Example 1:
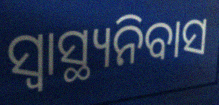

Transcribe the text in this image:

ସ୍ୱାସ୍ଥ୍ୟନିବାସ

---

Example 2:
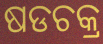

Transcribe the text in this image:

ଷଡଚକ୍ର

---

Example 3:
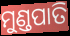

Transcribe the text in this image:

ମୁଣ୍ଡପାତି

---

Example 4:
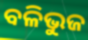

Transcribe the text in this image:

ବଳିଭୁଜ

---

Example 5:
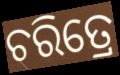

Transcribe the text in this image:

ଚରିତ୍ରେ